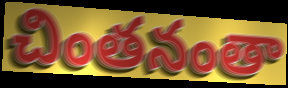
చింతనంతా